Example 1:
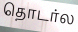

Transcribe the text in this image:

தொடர்ல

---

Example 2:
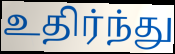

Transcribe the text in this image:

உதிர்ந்து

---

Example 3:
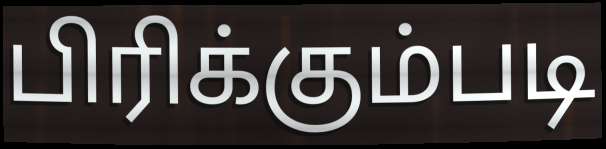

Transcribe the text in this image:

பிரிக்கும்படி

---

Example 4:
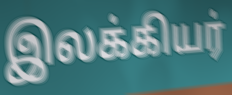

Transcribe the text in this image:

இலக்கியர்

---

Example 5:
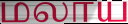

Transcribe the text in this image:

மலாய